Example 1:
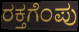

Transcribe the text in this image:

ರಕ್ತಗೆಂಪು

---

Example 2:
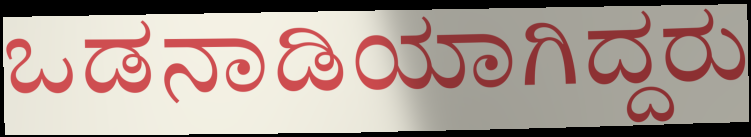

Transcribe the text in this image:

ಒಡನಾಡಿಯಾಗಿದ್ದರು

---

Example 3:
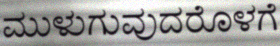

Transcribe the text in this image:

ಮುಳುಗುವುದರೊಳಗೆ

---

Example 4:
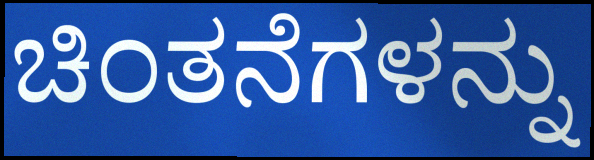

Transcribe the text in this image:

ಚಿಂತನೆಗಳನ್ನು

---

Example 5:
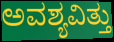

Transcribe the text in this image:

ಅವಶ್ಯವಿತ್ತು